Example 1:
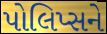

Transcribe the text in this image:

પોલિપ્સને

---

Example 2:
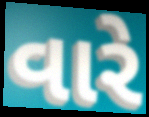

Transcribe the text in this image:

વારે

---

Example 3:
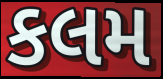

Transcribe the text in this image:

કલમ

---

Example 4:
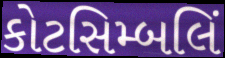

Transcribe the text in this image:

કોટસિમ્બલિં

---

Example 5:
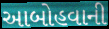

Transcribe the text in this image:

આબોહવાની